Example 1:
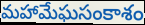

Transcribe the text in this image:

మహామేఘసంకాశం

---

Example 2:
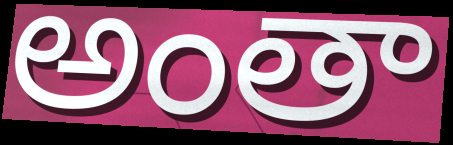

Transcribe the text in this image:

అంతా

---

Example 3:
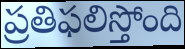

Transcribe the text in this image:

ప్రతిఫలిస్తోంది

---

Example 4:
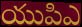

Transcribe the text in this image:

యుపిఎ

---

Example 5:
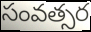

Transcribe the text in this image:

సంవత్సర